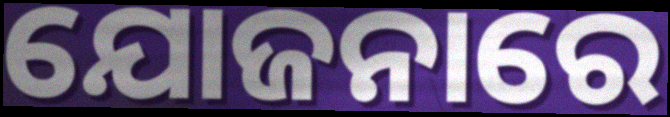
ଯୋଜନାରେ